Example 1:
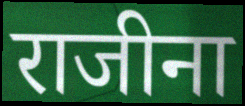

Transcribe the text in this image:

राजीना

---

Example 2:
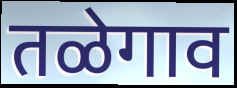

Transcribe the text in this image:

तळेगाव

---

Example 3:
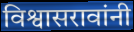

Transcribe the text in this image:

विश्वासरावांनी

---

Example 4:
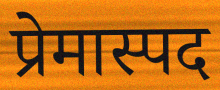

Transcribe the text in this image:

प्रेमास्पद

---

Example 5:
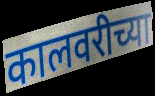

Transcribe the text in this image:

कालवरीच्या